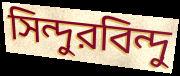
সিন্দুরবিন্দু